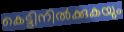
കെട്ടിനിൽക്കുകയും